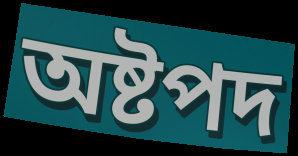
অষ্টপদ